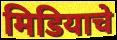
मिडियाचे